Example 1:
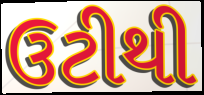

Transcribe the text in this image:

ઉટીથી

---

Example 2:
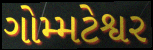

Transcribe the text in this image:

ગોમ્મટેશ્વર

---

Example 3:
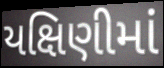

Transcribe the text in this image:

યક્ષિણીમાં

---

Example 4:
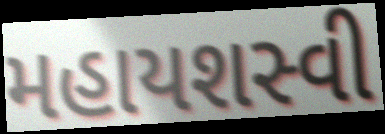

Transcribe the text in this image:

મહાયશસ્વી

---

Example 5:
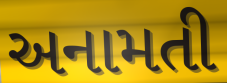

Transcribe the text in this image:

અનામતી